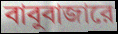
বাবুবাজারে